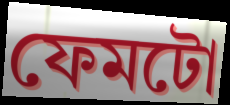
ফেমটো